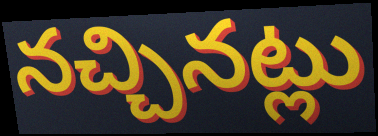
నచ్చినట్లు